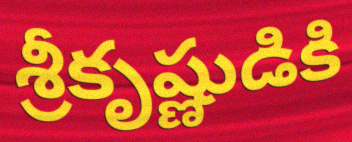
శ్రీకృష్ణుడికి